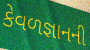
કેવળજ્ઞાનની